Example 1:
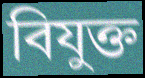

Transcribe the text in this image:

বিযুক্ত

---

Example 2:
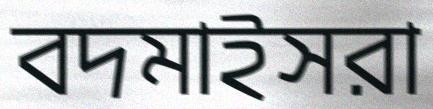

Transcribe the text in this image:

বদমাইসরা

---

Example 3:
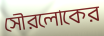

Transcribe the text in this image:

সৌরলোকের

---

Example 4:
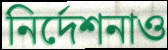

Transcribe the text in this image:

নির্দেশনাও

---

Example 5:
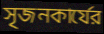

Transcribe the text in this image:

সৃজনকার্যের